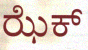
ಝೆಕ್